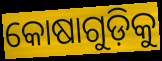
କୋଷାଗୁଡ଼ିକୁ